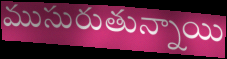
ముసురుతున్నాయి